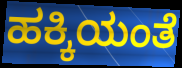
ಹಕ್ಕಿಯಂತೆ